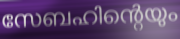
സേബഹിന്റെയും